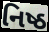
નિષ્ઠ